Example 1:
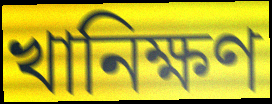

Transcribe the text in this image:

খানিক্ষণ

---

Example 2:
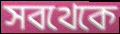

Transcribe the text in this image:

সবথেকে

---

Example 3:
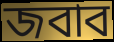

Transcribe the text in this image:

জবাব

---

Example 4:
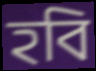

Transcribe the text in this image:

হবি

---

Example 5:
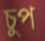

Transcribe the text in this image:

চুপ